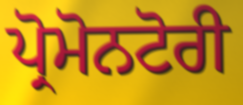
ਪ੍ਰੋਮੋਨਟੋਰੀ